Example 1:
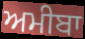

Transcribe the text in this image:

ਅਮੀਬਾ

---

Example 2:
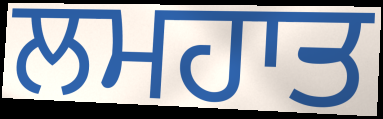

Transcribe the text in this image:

ਲਮਹਾਤ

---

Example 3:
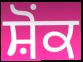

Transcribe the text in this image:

ਸ਼ੋਂਕ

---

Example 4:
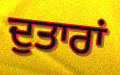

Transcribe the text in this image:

ਦੁਤਾਰਾਂ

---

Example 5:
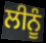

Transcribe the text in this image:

ਲੀਨੂੰ